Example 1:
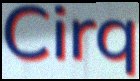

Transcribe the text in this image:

Cirq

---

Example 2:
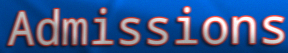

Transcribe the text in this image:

Admissions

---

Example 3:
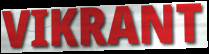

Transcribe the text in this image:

VIKRANT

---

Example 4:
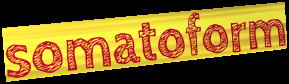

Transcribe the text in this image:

somatoform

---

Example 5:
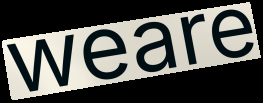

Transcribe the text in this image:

weare